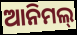
ଆନିମଲ୍